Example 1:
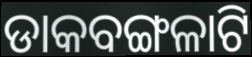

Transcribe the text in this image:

ଡାକବଙ୍ଗଳାଟି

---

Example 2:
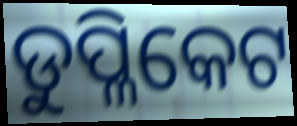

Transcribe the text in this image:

ଡୁପ୍ଳିକେଟ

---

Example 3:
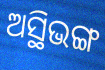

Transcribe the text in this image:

ଅସ୍ଥିଭଙ୍ଗ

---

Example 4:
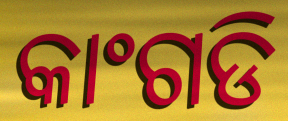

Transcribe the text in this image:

କାଂଗଡି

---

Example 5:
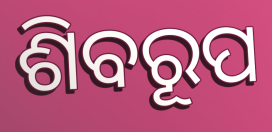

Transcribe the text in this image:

ଶିବରୂପ